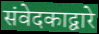
संवेदकाद्वारे